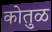
कोतुळ